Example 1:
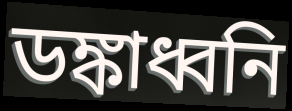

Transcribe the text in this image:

ডঙ্কাধ্বনি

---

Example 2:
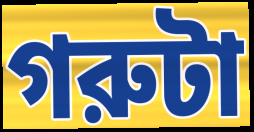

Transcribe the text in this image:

গরুটা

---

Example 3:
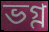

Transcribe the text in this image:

ভগ্ন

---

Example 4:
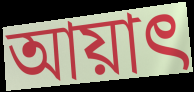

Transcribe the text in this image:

আয়াৎ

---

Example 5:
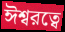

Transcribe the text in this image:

ঈশ্বরত্বে